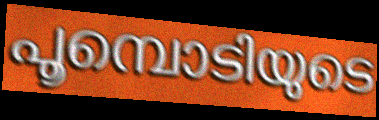
പൂമ്പൊടിയുടെ